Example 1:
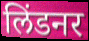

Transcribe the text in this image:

लिंडनर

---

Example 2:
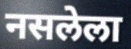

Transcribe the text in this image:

नसलेला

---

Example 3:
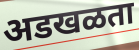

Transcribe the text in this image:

अडखळता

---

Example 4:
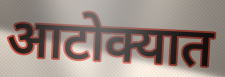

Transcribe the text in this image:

आटोक्यात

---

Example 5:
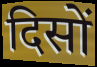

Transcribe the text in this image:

दिसों